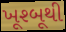
ખૂશ્બૂથી